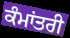
ਕੰਮਾਂਤਰੀ